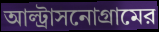
আল্ট্রাসনোগ্রামের